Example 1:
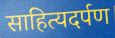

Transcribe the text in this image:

साहित्यदर्पण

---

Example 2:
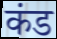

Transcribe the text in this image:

कंड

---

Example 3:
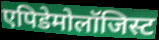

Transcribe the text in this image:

एपिडेमोलॉजिस्ट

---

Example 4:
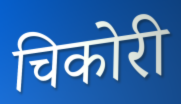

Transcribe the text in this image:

चिकोरी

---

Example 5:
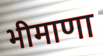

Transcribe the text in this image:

भीमाणा